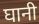
घानी